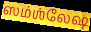
ஸம்ஶ்லேஷ